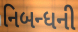
નિબન્ધની